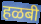
हळबी